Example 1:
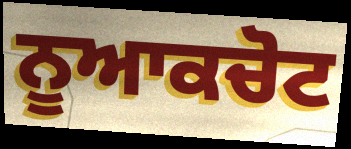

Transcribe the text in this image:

ਨੂਆਕਚੋਟ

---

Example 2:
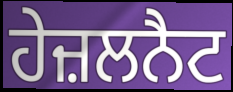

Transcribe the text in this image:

ਹੇਜ਼ਲਨੈਟ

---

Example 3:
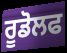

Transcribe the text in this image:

ਰੂਡੋਲਫ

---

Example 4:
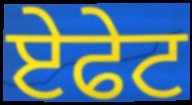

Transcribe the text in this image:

ਏਫੇਟ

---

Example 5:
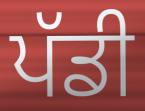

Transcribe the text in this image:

ਪੱਡੀ